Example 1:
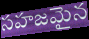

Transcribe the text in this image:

సహజమైన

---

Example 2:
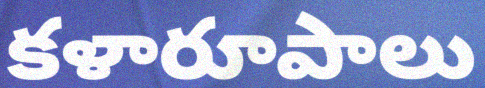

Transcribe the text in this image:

కళారూపాలు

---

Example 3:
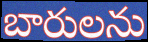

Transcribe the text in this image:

బారులను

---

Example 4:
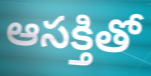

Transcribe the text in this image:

ఆసక్తితో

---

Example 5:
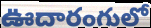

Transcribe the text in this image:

ఊదారంగులో